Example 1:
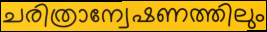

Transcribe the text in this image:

ചരിത്രാന്വേഷണത്തിലും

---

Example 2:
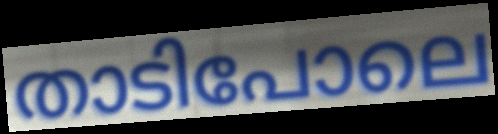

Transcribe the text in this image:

താടിപോലെ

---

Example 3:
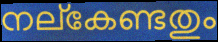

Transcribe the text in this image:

നല്കേണ്ടതും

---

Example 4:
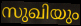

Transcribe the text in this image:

സുഖിയും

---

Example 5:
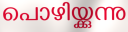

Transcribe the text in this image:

പൊഴിയ്ക്കുന്നു